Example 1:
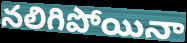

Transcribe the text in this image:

నలిగిపోయినా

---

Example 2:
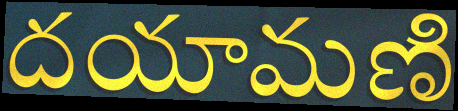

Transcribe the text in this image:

దయామణి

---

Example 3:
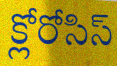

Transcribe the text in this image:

క్లోరోసిస్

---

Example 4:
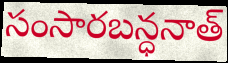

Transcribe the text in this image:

సంసారబన్ధనాత్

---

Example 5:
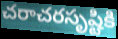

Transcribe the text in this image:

చరాచరసృష్టికి